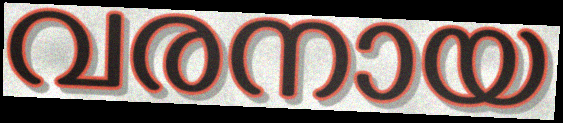
വരനായ